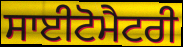
ਸਾਈਟੋਮੈਟਰੀ